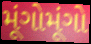
મૂંગોમૂંગો